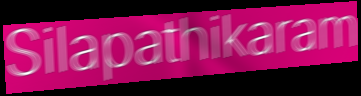
Silapathikaram